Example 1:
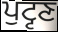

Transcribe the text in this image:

ਪੁਟ੍ਟਣ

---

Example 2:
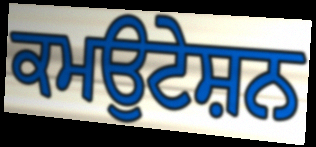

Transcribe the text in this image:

ਕਮਉਟੇਸ਼ਨ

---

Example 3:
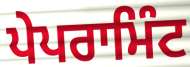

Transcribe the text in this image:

ਪੇਪਰਾਮਿੰਟ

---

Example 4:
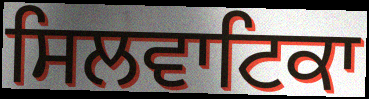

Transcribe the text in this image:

ਸਿਲਵਾਟਿਕਾ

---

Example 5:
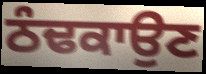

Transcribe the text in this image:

ਠੰਢਕਾਉਣ